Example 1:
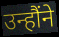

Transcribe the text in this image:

उन्हौंने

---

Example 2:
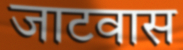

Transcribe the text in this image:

जाटवास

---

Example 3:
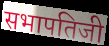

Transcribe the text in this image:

सभापतिजी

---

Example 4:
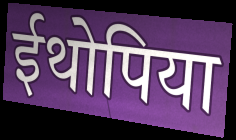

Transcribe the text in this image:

ईथोपिया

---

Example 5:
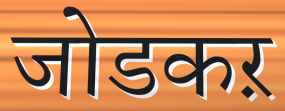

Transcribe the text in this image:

जोडकऱ